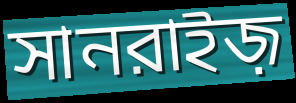
সানরাইজ়